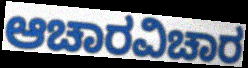
ಆಚಾರವಿಚಾರ